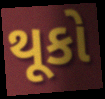
થૂકો